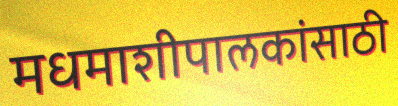
मधमाशीपालकांसाठी